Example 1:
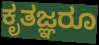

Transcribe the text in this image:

ಕೃತಜ್ಞರೂ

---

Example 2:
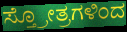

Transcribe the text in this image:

ಸ್ತ್ರೋತ್ರಗಳಿಂದ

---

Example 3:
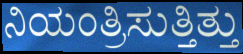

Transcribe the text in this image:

ನಿಯಂತ್ರಿಸುತ್ತಿತ್ತು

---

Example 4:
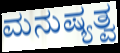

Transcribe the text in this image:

ಮನುಷ್ಯತ್ವ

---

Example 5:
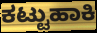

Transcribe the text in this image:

ಕಟ್ಟುಹಾಕಿ